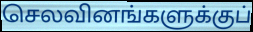
செலவினங்களுக்குப்